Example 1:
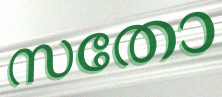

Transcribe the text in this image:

സതോ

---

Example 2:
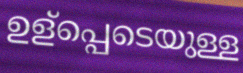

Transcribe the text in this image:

ഉള്പ്പെടെയുള്ള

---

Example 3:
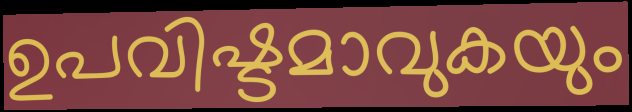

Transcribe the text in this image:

ഉപവിഷ്ടമാവുകയും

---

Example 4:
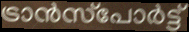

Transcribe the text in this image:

ട്രാൻസ്‌പോർട്ട്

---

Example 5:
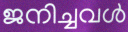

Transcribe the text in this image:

ജനിച്ചവൾ